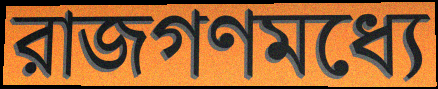
রাজগণমধ্যে